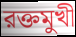
রক্তমুখী